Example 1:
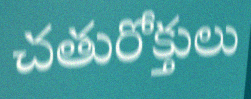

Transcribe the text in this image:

చతురోక్తులు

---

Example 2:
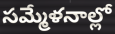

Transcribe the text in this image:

సమ్మేళనాల్లో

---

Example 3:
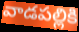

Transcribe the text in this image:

వాడపల్లికి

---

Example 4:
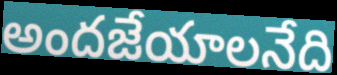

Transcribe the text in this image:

అందజేయాలనేది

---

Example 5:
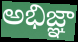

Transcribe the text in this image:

అభిజ్ఞా